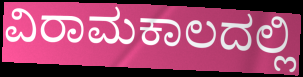
ವಿರಾಮಕಾಲದಲ್ಲಿ